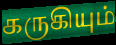
கருகியும்